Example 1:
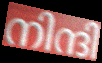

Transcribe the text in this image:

നിന്ദി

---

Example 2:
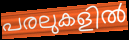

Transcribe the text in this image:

പരലുകളിൽ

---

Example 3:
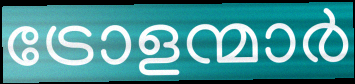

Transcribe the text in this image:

ട്രോളന്മാർ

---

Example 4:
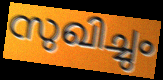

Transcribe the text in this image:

സുഖിച്ചും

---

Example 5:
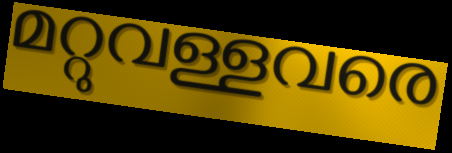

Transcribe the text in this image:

മറ്റുവള്ളവരെ